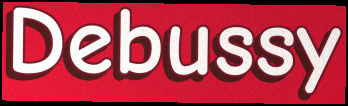
Debussy